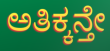
ಅತಿಕ್ಕನ್ತೇ